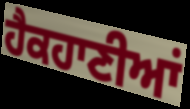
ਹੈਕਹਾਣੀਆਂ